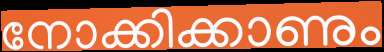
നോക്കിക്കാണും